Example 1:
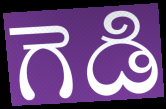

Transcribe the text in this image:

గెడి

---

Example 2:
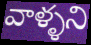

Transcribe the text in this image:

వాళ్ళని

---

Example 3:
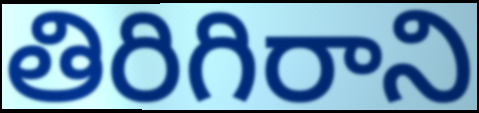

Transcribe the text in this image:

తిరిగిరాని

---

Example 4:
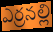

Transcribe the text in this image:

ఎర్రనల్లి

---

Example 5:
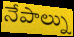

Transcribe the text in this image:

నేపాల్ను